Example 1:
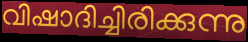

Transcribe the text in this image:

വിഷാദിച്ചിരിക്കുന്നു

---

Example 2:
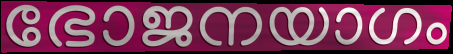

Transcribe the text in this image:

ഭോജനയാഗം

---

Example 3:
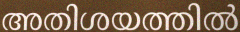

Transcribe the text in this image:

അതിശയത്തിൽ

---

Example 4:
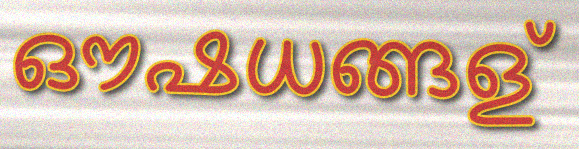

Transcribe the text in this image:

ഔഷധങ്ങള്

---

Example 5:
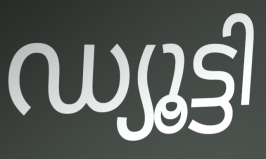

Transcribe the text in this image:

ഡ്യൂട്ടി